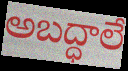
అబద్ధాలే